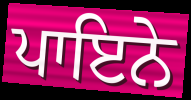
ਪਾਇਨੇ